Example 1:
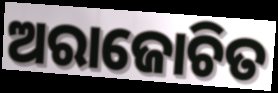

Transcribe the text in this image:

ଅରାଜୋଚିତ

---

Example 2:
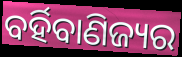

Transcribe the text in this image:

ବର୍ହିବାଣିଜ୍ୟର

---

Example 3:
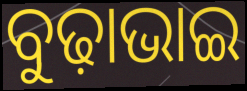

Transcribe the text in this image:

ବୁଢ଼ାଭାଇ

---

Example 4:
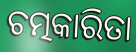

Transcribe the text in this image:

ଚତ୍ମକାରିତା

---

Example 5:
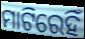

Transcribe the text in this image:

ମାଟିରେହିଁ